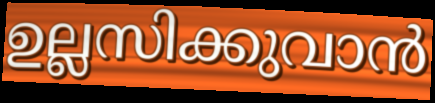
ഉല്ലസിക്കുവാൻ